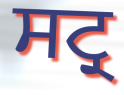
ਸਟ੍ਰ